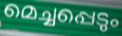
മെച്ചപ്പെടും